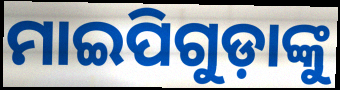
ମାଇପିଗୁଡ଼ାଙ୍କୁ